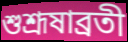
শুশ্রূষাব্রতী